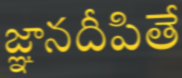
జ్ఞానదీపితే